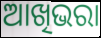
ଆଖିଭରା